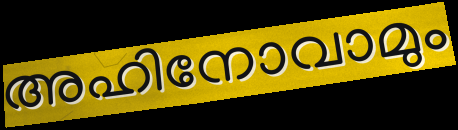
അഹിനോവാമും